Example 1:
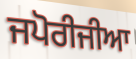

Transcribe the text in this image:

ਜਪੋਰੀਜੀਆ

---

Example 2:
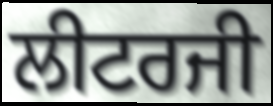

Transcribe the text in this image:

ਲੀਟਰਜੀ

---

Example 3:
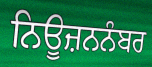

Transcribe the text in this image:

ਨਿਊਜ਼ਨਨੰਬਰ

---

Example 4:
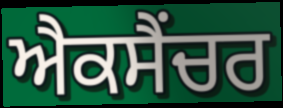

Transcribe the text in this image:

ਐਕਸੈਂਚਰ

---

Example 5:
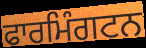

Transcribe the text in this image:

ਫਾਰਮਿੰਗਟਨ